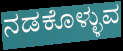
ನಡಕೊಳ್ಳುವ